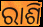
ରାଶି